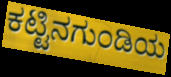
ಕಟ್ಟಿನಗುಂಡಿಯ